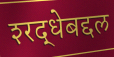
श्रद्धेबद्दल